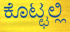
ಕೊಟ್ಟಲ್ಲಿ